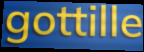
gottille